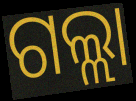
ଗଲ୍ଲା